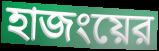
হাজংয়ের